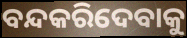
ବନ୍ଦକରିଦେବାକୁ